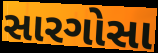
સારગોસા